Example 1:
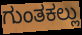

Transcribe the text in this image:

ಗುಂತಕಲ್ಲು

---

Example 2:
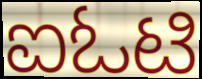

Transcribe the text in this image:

ಐಓಟಿ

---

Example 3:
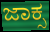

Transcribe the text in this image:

ಜಾಕ್ಸ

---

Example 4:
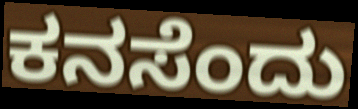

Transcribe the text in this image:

ಕನಸೆಂದು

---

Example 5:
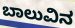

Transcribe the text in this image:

ಬಾಲುವಿನ